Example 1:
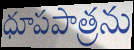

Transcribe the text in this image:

ధూపపాత్రను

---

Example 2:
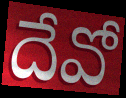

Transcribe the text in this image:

దేవో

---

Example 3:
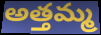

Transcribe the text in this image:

అత్తమ్మ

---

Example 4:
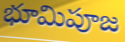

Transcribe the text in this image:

భూమిపూజ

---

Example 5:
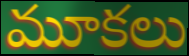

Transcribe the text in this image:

మూకలు